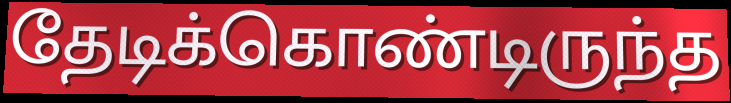
தேடிக்கொண்டிருந்த